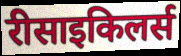
रीसाइकिलर्स